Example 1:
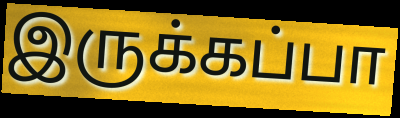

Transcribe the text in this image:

இருக்கப்பா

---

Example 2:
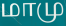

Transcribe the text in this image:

மாமு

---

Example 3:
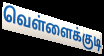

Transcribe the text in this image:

வெள்ளைக்குடி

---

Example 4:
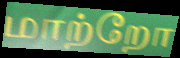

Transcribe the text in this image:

மாற்றோ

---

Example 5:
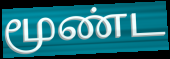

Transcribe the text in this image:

மூண்ட